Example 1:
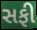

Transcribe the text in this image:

સફી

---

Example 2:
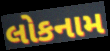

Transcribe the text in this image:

લોકનામ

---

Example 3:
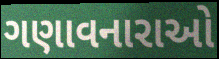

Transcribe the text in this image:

ગણાવનારાઓ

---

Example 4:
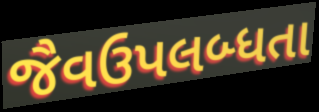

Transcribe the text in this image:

જૈવઉપલબ્ધતા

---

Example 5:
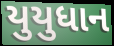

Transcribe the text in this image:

યુયુધાન